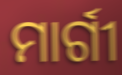
ମାର୍ଗୀ